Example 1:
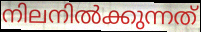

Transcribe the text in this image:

നിലനിൽക്കുന്നത്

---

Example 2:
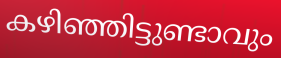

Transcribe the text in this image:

കഴിഞ്ഞിട്ടുണ്ടാവും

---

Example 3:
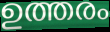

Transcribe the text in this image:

ഉത്തരം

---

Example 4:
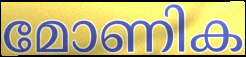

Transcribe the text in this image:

മോണിക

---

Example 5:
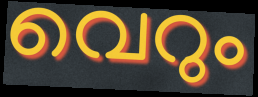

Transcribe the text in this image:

വെറും